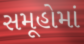
સમૂહોમાં